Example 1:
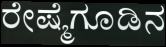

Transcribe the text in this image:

ರೇಷ್ಮೆಗೂಡಿನ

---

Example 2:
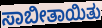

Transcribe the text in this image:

ಸಾಬೀತಾಯಿತು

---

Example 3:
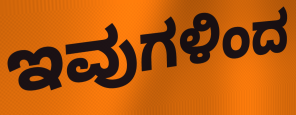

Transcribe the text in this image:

ಇವುಗಳಿಂದ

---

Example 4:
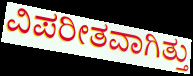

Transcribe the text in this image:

ವಿಪರೀತವಾಗಿತ್ತು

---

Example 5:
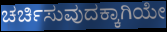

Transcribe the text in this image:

ಚರ್ಚಿಸುವುದಕ್ಕಾಗಿಯೇ